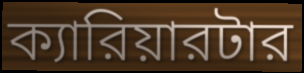
ক্যারিয়ারটার